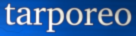
tarporeo